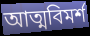
আত্মবিমর্শ